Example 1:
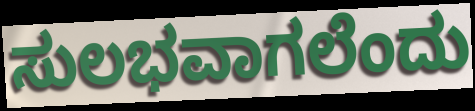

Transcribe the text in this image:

ಸುಲಭವಾಗಲೆಂದು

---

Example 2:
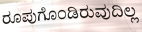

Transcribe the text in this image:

ರೂಪುಗೊಂಡಿರುವುದಿಲ್ಲ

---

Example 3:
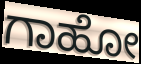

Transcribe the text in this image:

ಗಾಹೋ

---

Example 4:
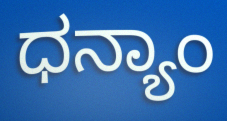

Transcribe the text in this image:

ಧನ್ಯಾಂ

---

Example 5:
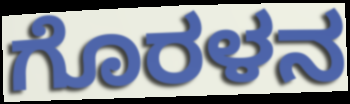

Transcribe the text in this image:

ಗೊರಳನ